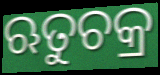
ଋତୁଚକ୍ର